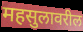
महसुलावरील